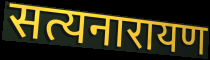
सत्यनारायण